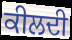
ਕੀਲਦੀ